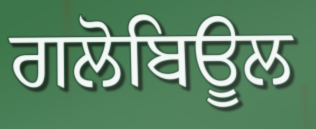
ਗਲੋਬਿਊਲ